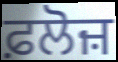
ਫ਼ਲੋਜ਼